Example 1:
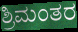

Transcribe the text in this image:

ಶ್ರಿಮಂತರ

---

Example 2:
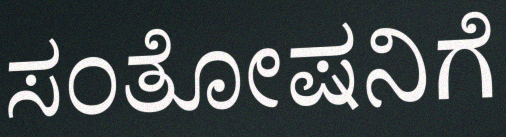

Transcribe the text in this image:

ಸಂತೋಷನಿಗೆ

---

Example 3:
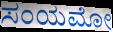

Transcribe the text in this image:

ಸಂಯಮೋ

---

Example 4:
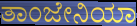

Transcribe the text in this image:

ತಾಂಜೇನಿಯಾ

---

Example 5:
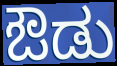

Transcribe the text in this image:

ಔಡು